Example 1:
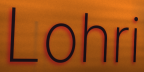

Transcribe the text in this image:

Lohri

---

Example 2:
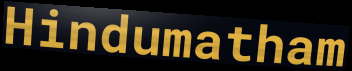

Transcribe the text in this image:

Hindumatham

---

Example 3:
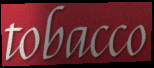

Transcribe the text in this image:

tobacco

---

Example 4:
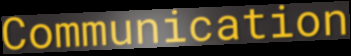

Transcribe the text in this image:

Communication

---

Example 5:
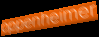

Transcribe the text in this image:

oppenheimer